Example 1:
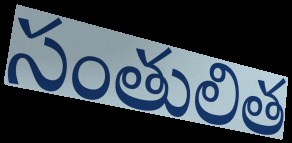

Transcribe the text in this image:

సంతులిత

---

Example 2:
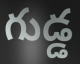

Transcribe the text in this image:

గుడ్డ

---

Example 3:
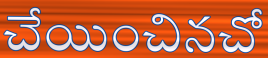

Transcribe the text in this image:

చేయించినచో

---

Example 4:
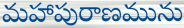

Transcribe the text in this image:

మహాపురాణమును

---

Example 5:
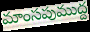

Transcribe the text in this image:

మాంసపుముద్ద